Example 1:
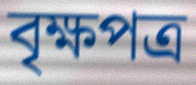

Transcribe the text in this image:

বৃক্ষপত্র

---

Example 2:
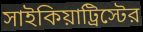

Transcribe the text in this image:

সাইকিয়াট্রিস্টের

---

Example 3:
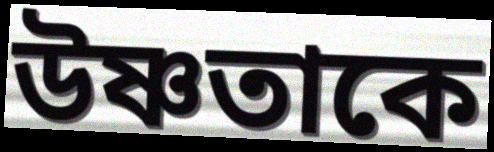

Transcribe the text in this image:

উষ্ণতাকে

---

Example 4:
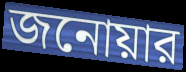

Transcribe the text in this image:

জনোয়ার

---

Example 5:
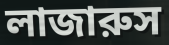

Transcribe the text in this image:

লাজারুস